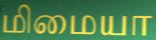
மிமையா